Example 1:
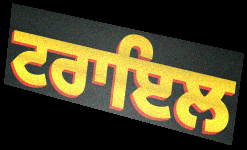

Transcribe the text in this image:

ਟਰਾਇਲ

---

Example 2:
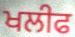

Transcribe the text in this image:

ਖਲੀਫ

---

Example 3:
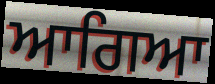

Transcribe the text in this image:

ਆਗਿਆ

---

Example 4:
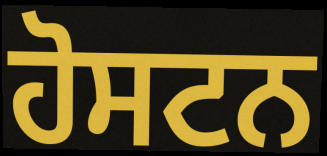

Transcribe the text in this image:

ਹੋਸਟਨ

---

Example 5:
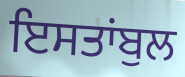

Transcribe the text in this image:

ਇਸਤਾਂਬੁਲ